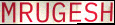
MRUGESH